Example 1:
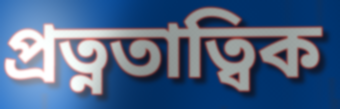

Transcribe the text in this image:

প্রত্নতাত্বিক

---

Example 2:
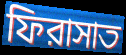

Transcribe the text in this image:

ফিরাসাত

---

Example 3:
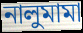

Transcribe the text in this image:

নালুমামা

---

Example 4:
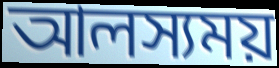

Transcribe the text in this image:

আলস্যময়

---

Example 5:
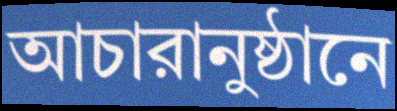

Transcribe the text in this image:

আচারানুষ্ঠানে